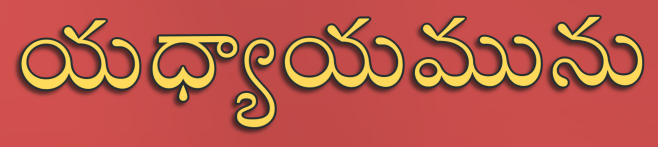
యధ్యాయమును